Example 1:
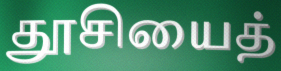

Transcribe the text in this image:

தூசியைத்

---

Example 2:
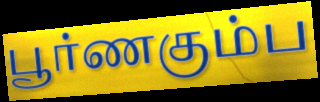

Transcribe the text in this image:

பூர்ணகும்ப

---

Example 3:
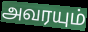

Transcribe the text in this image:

அவரயும்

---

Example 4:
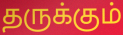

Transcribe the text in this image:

தருக்கும்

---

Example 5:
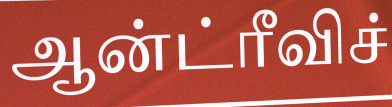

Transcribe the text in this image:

ஆன்ட்ரீவிச்